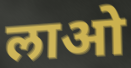
लाओ